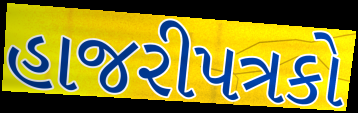
હાજરીપત્રકો